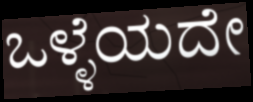
ಒಳ್ಳೆಯದೇ